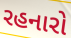
રહનારો